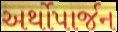
અર્થોપાર્જન